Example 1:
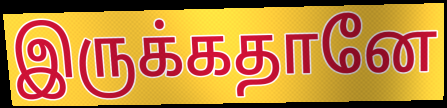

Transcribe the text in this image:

இருக்கதானே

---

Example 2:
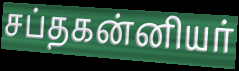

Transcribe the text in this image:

சப்தகன்னியர்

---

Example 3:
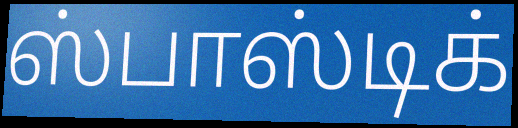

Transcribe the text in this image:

ஸ்பாஸ்டிக்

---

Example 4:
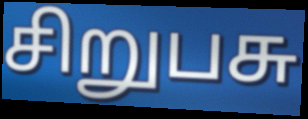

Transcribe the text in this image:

சிறுபசு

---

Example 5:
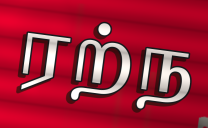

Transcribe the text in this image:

ரற்ந